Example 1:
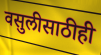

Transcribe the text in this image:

वसुलीसाठीही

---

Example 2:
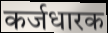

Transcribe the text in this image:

कर्जधारक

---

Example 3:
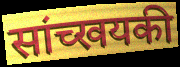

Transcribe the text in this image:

सांच्खयकी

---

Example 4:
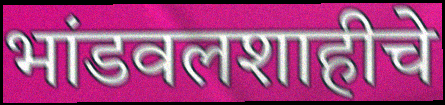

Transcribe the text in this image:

भांडवलशाहीचे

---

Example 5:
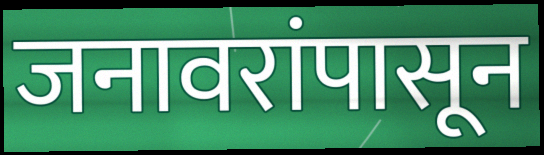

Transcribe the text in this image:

जनावरांपासून